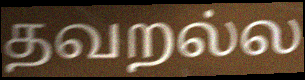
தவறல்ல